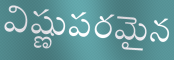
విష్ణుపరమైన